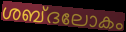
ശബ്ദലോകം